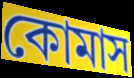
কোমাস